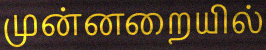
முன்னறையில்